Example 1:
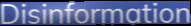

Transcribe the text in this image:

Disinformation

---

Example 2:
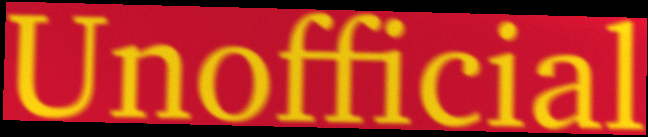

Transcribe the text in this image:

Unofficial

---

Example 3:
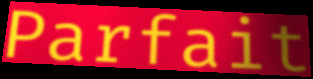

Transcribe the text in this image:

Parfait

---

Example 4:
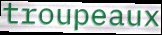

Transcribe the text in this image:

troupeaux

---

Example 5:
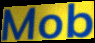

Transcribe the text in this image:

Mob